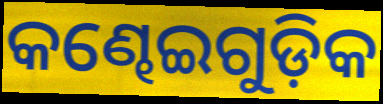
କଣ୍ଢେଇଗୁଡ଼ିକ